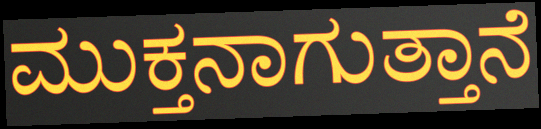
ಮುಕ್ತನಾಗುತ್ತಾನೆ